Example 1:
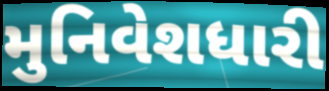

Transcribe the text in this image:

મુનિવેશધારી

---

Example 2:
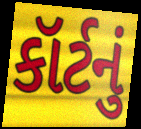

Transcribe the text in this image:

કૉર્ટનું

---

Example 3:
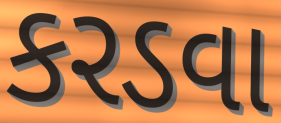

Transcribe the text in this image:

કરડવા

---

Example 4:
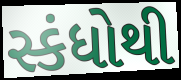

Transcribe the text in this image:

સ્કંધોથી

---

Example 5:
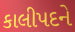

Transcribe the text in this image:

કાલીપદને